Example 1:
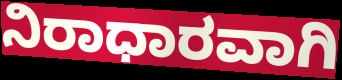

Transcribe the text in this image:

ನಿರಾಧಾರವಾಗಿ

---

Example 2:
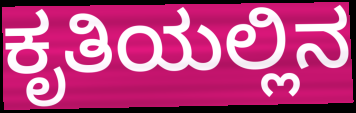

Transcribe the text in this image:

ಕೃತಿಯಲ್ಲಿನ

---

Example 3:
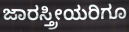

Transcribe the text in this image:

ಜಾರಸ್ತ್ರೀಯರಿಗೂ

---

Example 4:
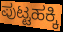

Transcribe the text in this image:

ಪುಟ್ಟಹಕ್ಕಿ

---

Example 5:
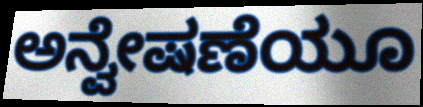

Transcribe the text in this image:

ಅನ್ವೇಷಣೆಯೂ